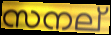
സനല്